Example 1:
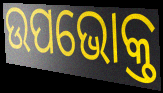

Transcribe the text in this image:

ଉପଭୋକ୍ତ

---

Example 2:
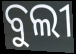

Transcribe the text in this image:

ବୁଲୀ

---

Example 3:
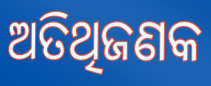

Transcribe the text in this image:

ଅତିଥିଜଣକ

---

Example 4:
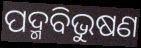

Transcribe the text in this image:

ପଦ୍ମବିଭୁଷଣ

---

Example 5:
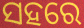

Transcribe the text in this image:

ସହରେ